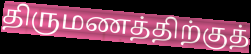
திருமணத்திற்குத்